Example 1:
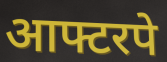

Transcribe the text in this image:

आफ्टरपे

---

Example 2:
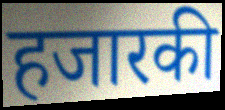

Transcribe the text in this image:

हजारकी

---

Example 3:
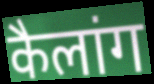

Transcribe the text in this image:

कैलांग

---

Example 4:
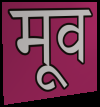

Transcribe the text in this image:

मूव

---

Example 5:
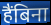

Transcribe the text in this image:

हैंबिना